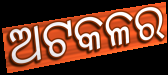
ଅଟକଳର